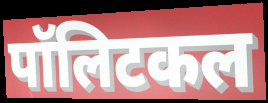
पॉलिटकल